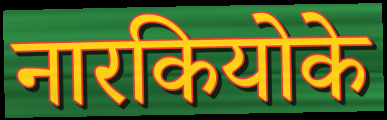
नारकियोके